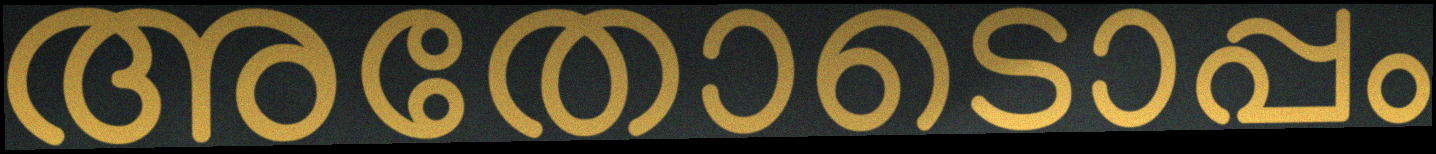
അതോടൊപ്പം